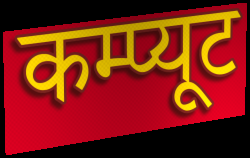
कम्प्यूट